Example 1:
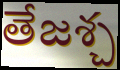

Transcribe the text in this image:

తేజశ్చ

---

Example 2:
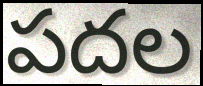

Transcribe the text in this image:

పదల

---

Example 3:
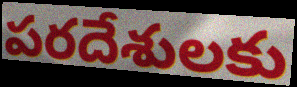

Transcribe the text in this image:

పరదేశులకు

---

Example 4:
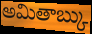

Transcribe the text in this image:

అమితాబ్కు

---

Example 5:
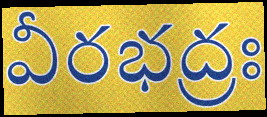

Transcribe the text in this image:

వీరభద్రః